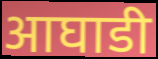
आघाडी